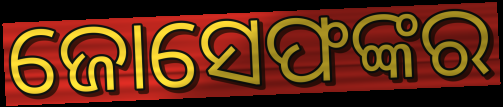
ଜୋସେଫଙ୍କର